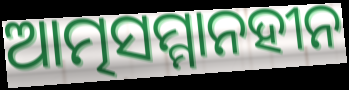
ଆତ୍ମସମ୍ମାନହୀନ